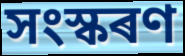
সংস্কৰণ